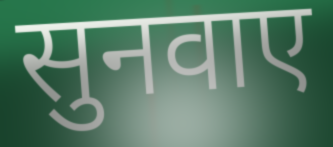
सुनवाए